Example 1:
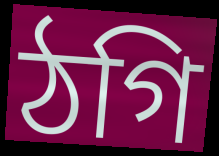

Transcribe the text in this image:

ঠগি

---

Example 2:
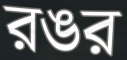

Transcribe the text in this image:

রঙর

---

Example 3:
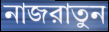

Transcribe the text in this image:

নাজরাতুন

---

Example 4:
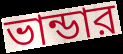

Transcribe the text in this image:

ভান্ডার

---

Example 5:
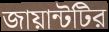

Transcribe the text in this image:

জায়ান্টটির